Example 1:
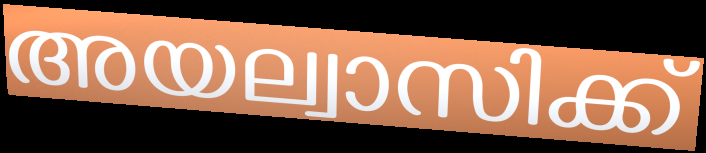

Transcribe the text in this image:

അയല്വാസിക്ക്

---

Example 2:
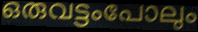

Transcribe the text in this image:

ഒരുവട്ടംപോലും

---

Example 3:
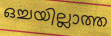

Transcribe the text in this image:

ഒച്ചയില്ലാത്ത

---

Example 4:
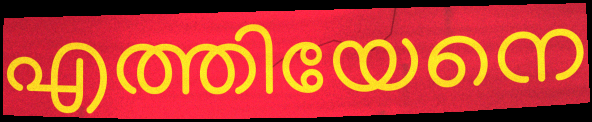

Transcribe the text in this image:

എത്തിയേനെ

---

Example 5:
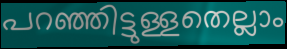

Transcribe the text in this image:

പറഞ്ഞിട്ടുള്ളതെല്ലാം